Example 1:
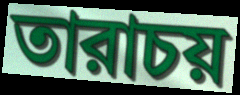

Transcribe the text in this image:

তারাচয়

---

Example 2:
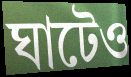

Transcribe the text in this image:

ঘাটেও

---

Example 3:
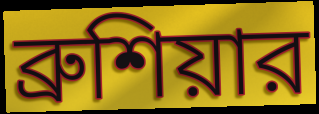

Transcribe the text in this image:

ব্রুশিয়ার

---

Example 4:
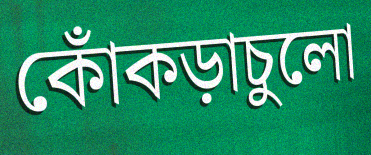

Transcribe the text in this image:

কোঁকড়াচুলো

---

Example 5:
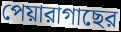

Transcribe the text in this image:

পেয়ারাগাছের